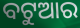
ବଟୁଆର